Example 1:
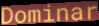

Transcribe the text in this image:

Dominar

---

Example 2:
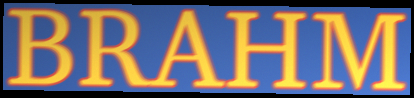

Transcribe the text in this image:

BRAHM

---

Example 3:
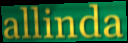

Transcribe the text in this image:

allinda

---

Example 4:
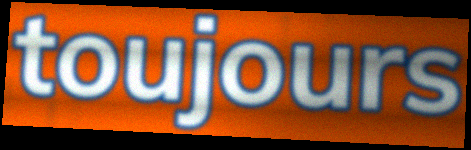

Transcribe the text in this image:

toujours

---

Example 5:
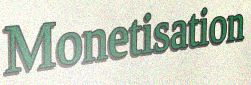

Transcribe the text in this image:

Monetisation